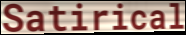
Satirical